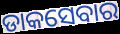
ଡାକସେବାର